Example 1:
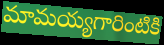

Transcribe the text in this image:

మామయ్యగారింటికి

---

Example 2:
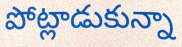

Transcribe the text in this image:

పోట్లాడుకున్నా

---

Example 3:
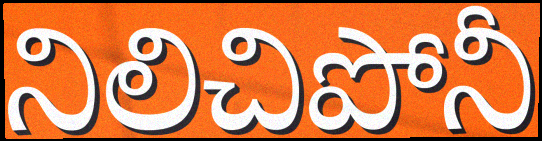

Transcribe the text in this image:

నిలిచిపోనీ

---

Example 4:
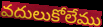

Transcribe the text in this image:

వదులుకోలేము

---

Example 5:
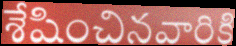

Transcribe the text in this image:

శేషించినవారికి